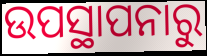
ଉପସ୍ଥାପନାରୁ